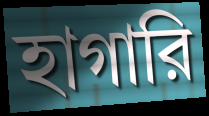
হাগারি